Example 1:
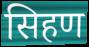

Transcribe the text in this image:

सिहण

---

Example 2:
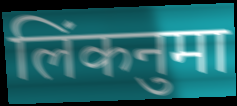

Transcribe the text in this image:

लिंकनुमा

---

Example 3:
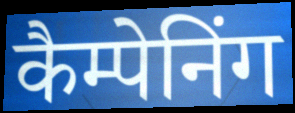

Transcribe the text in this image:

कैम्पेनिंग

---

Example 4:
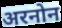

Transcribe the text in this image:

अरनोन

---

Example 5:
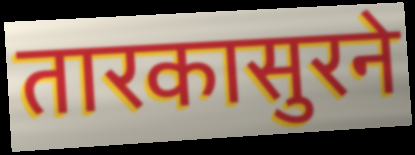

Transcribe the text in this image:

तारकासुरने